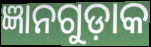
ଜ୍ଞାନଗୁଡ଼ାକ